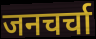
जनचर्चा